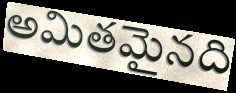
అమితమైనది